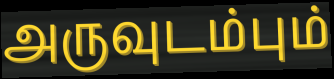
அருவுடம்பும்